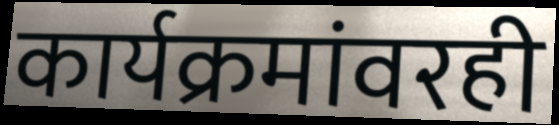
कार्यक्रमांवरही